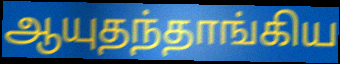
ஆயுதந்தாங்கிய